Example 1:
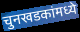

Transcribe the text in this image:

चुनखडकांमध्ये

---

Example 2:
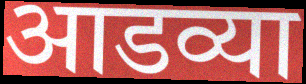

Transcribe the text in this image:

आडव्या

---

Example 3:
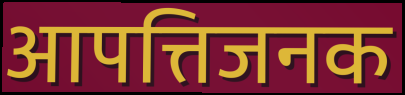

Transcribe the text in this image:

आपत्तिजनक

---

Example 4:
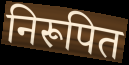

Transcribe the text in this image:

निरूपित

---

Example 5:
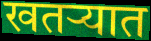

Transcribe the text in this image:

खतऱ्यात